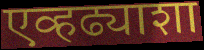
एव्हढ्याशा